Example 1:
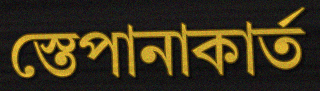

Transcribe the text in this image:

স্তেপানাকার্ত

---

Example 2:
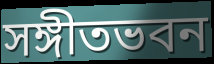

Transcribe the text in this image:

সঙ্গীতভবন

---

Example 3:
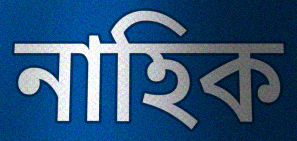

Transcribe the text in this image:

নাহিক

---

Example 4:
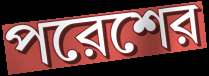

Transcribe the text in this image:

পরেশের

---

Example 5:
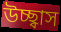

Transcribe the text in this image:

উচ্ছ্বাস